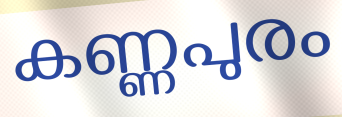
കണ്ണപുരം